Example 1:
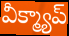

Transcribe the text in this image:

వీక్మ్యాప్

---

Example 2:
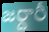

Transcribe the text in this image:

జర్దారీ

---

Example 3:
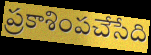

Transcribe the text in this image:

ప్రకాశింపచేసేది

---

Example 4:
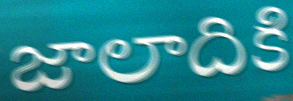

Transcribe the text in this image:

జాలాదికి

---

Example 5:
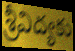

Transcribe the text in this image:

శ్రీవిద్యకు